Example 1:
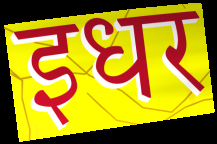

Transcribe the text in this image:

इधर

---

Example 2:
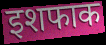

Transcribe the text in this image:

इशफाक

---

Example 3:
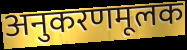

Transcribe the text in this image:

अनुकरणमूलक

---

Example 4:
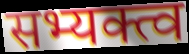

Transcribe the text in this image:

सभ्यक्त्व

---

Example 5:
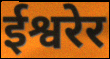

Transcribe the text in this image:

ईश्वरेर